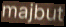
majbut